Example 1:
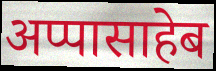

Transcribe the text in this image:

अप्पासाहेब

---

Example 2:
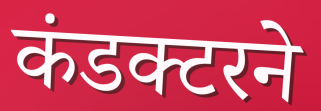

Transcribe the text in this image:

कंडक्टरने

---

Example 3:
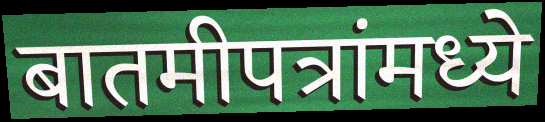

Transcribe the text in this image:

बातमीपत्रांमध्ये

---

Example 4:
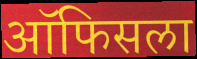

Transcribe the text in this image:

ऑफिसला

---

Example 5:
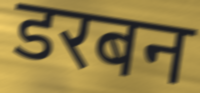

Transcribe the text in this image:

डरबन